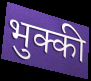
भुक्की